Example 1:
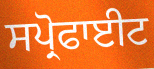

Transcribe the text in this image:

ਸਪ੍ਰੋਫਾਈਟ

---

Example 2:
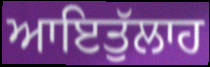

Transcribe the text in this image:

ਆਇਤੁੱਲਾਹ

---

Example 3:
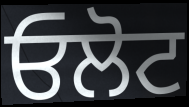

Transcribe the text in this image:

ਓਲੋਟ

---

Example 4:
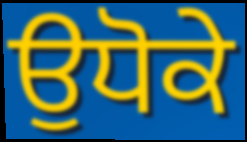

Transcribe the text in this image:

ਉਧੋਕੇ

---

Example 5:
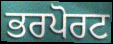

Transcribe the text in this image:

ਭਰਪੋਰਟ